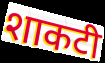
शाकटी